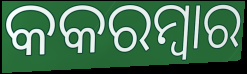
କକରମ୍ବାର